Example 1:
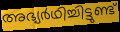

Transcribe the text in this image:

അഭ്യർഥിച്ചിട്ടുണ്ട്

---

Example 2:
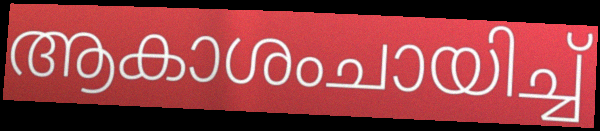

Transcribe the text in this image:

ആകാശംചായിച്ച്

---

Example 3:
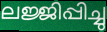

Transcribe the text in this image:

ലജ്ജിപ്പിച്ചു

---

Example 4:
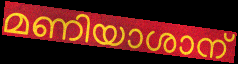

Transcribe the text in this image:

മണിയാശാന്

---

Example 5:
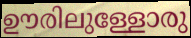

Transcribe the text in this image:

ഊരിലുള്ളോരു